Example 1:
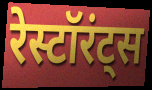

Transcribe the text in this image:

रेस्टॉरंट्स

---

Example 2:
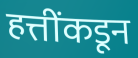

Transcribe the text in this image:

हत्तींकडून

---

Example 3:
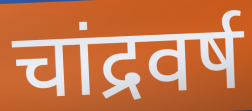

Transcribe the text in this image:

चांद्रवर्ष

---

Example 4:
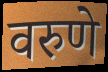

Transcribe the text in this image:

वरुणे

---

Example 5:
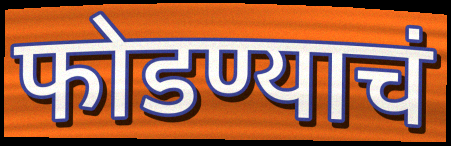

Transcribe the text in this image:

फोडण्याचं